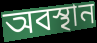
অবস্থান